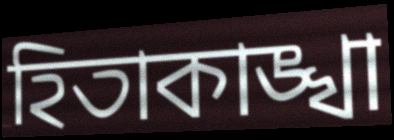
হিতাকাঙ্খা